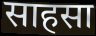
साहसा